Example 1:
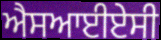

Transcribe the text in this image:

ਐਸਆਈਏਸੀ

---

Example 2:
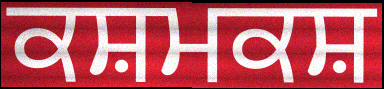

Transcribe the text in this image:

ਕਸ਼ਮਕਸ਼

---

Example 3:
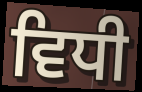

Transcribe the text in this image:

ਵਿਧੀ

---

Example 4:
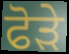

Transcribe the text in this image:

ਫੋੜੇ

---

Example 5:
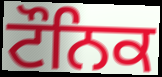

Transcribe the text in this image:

ਟੌਨਿਕ